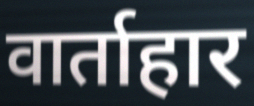
वार्ताहार